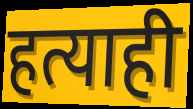
हत्याही